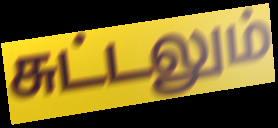
சுட்டலும்